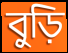
বুড়ি